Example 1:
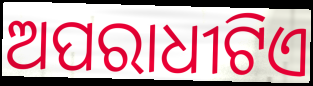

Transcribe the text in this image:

ଅପରାଧୀଟିଏ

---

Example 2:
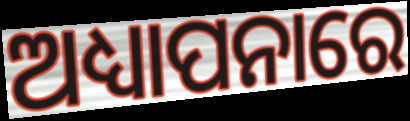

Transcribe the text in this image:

ଅଧ୍ୟାପନାରେ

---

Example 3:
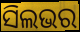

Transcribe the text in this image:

ସିଲଭର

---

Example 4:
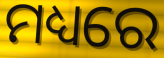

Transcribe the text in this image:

ମଧ୍ୟରେ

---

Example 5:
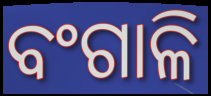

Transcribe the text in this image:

ବଂଗାଳି